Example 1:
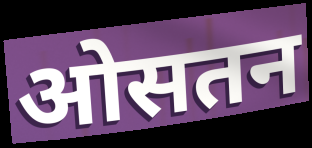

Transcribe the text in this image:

ओसतन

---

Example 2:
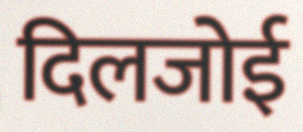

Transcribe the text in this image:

दिलजोई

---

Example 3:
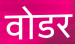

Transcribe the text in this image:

वोडर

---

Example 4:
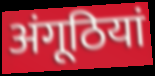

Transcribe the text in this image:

अंगूठियां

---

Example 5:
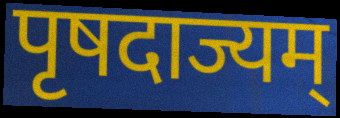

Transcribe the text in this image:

पृषदाज्यम्